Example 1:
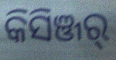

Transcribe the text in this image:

କିସିଞ୍ଜର୍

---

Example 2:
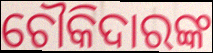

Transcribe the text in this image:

ଚୌକିଦାରଙ୍କ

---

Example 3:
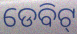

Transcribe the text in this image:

ଡେବିଟ୍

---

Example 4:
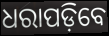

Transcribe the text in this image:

ଧରାପଡ଼ିବେ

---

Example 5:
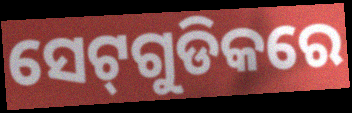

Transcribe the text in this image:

ସେଟ୍‌ଗୁଡିକରେ